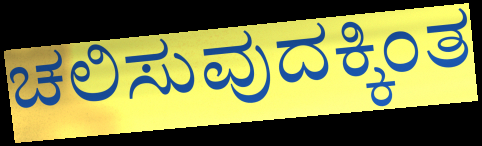
ಚಲಿಸುವುದಕ್ಕಿಂತ